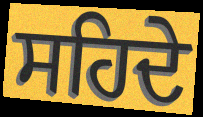
ਸਹਿਦੇ